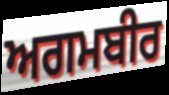
ਅਗਮਬੀਰ